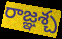
రాజ్ఞశ్చ